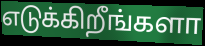
எடுக்கிறீங்களா